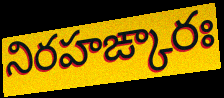
నిరహఙ్కారః